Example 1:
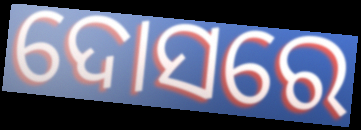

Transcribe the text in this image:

ଦୋସରେ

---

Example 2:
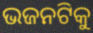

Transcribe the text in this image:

ଭଜନଟିକୁ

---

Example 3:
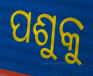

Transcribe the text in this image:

ପଶୁକୁ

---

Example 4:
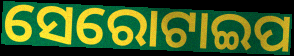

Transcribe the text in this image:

ସେରୋଟାଇପ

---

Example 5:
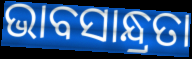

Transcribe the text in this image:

ଭାବସାନ୍ଧ୍ରତା